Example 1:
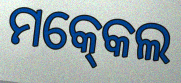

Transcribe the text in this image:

ମକ୍‍କେଲ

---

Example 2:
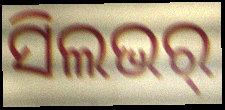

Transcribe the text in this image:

ସିଲଭର୍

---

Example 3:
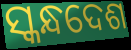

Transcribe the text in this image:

ସ୍କନ୍ଧଦେଶ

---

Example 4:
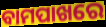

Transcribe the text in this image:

ବାମପାଖରେ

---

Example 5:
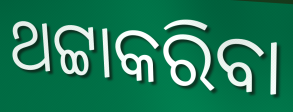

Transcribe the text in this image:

ଥଟ୍ଟାକରିବା